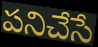
పనిచేసే